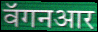
वॅगनआर